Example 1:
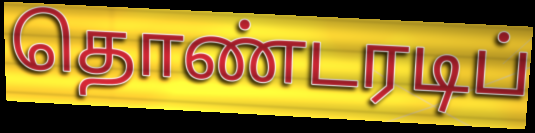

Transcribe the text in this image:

தொண்டரடிப்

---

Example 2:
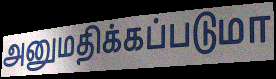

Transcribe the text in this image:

அனுமதிக்கப்படுமா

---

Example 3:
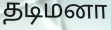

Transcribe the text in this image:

தடிமனா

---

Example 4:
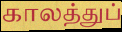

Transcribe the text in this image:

காலத்துப்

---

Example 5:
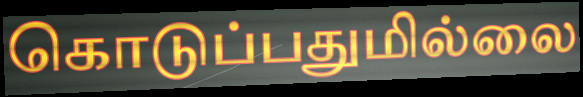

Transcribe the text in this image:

கொடுப்பதுமில்லை